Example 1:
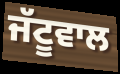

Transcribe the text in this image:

ਜੱਟੂਵਾਲ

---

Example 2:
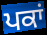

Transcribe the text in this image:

ਪਕਾਂ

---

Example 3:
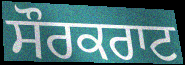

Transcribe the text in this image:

ਸੌਰਕਰਾਟ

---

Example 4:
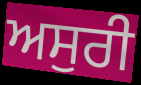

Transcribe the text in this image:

ਅਸੁਰੀ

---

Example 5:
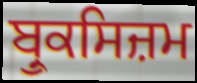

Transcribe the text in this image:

ਬ੍ਰੁਕਸਿਜ਼ਮ